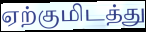
ஏற்குமிடத்து